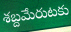
శబ్దమేరుటకు